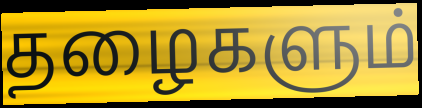
தழைகளும்